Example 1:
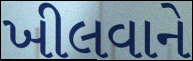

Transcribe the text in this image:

ખીલવાને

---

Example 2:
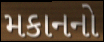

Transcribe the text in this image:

મકાનનો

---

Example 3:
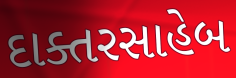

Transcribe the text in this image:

દાક્તરસાહેબ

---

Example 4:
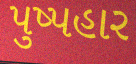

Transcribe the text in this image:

પુષ્પહાર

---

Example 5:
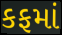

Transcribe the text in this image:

કફમાં